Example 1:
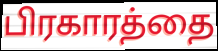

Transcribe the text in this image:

பிரகாரத்தை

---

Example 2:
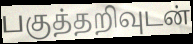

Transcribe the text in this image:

பகுத்தறிவுடன்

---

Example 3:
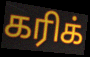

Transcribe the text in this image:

கரிக்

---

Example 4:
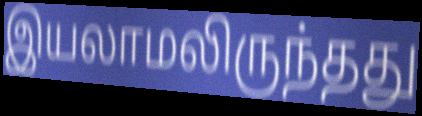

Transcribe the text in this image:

இயலாமலிருந்தது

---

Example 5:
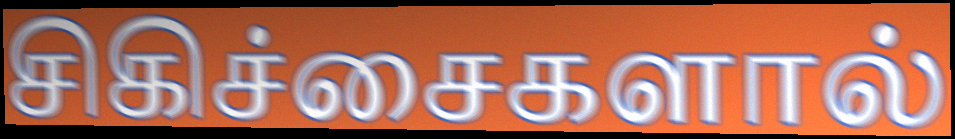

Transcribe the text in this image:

சிகிச்சைகளால்